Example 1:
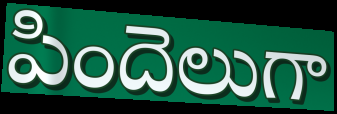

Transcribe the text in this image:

పిందెలుగా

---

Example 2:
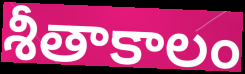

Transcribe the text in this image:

శీతాకాలం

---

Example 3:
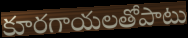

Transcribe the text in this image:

కూరగాయలతోపాటు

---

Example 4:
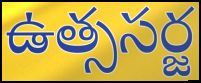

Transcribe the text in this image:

ఉత్ససర్జ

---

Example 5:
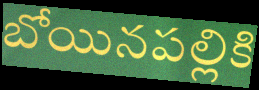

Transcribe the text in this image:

బోయినపల్లికి